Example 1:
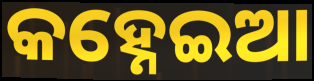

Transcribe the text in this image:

କହ୍ନେଇଆ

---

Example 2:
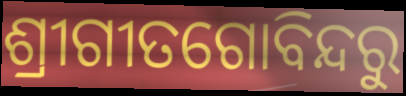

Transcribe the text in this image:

ଶ୍ରୀଗୀତଗୋବିନ୍ଦରୁ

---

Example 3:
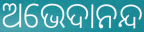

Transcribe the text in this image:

ଅଭେଦାନନ୍ଦ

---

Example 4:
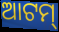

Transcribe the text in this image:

ଆଟମ୍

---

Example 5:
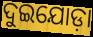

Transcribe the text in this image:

ଦୁଇଯୋଡ଼ା